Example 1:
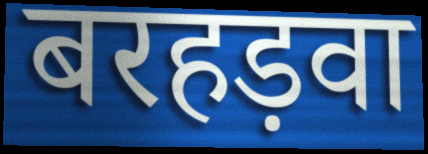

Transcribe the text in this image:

बरहड़वा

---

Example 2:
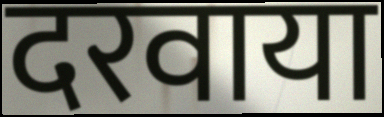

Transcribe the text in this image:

दरवाया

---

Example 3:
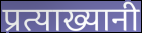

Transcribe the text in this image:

प्रत्याख्यानी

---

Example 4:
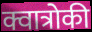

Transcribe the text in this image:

क्वात्रोकी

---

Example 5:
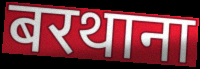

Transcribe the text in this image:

बरथाना